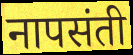
नापसंती